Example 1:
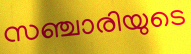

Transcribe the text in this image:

സഞ്ചാരിയുടെ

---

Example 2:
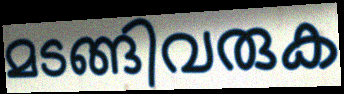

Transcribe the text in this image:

മടങ്ങിവരുക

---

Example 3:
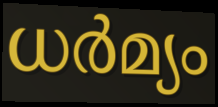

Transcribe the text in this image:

ധർമ്യം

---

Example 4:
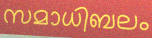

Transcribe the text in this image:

സമാധിബലം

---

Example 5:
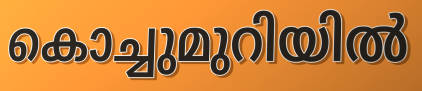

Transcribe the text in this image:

കൊച്ചുമുറിയിൽ